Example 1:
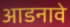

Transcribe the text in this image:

आडनावे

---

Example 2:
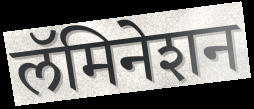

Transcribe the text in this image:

लॅमिनेशन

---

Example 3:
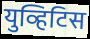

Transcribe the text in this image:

युव्हिटिस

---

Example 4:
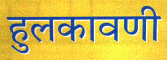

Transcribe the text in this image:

हुलकावणी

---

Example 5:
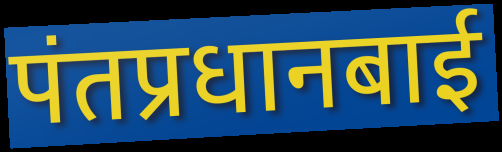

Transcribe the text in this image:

पंतप्रधानबाई